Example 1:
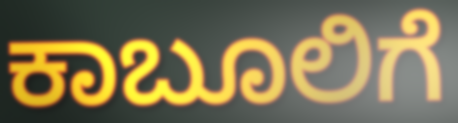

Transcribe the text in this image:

ಕಾಬೂಲಿಗೆ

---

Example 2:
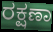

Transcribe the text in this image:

ರಕ್ಷಣಾ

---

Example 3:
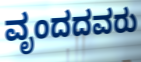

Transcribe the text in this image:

ವೃಂದದವರು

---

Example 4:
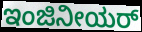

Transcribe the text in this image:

ಇಂಜಿನೀಯರ್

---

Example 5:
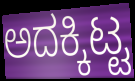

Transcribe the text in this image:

ಅದಕ್ಕಿಟ್ಟ